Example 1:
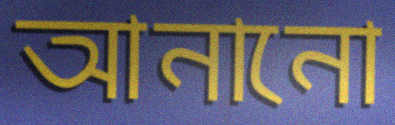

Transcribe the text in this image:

আনানো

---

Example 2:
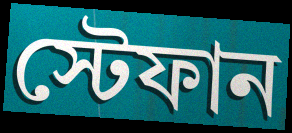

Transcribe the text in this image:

স্টেফান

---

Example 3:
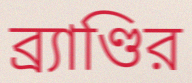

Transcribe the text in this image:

ব্র্যাণ্ডির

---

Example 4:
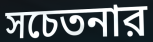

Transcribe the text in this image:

সচেতনার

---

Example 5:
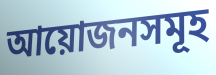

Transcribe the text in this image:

আয়োজনসমূহ